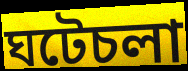
ঘটেচলা